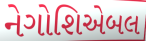
નેગોશિએબલ